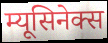
म्यूसिनेक्स